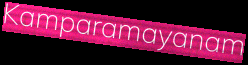
Kamparamayanam